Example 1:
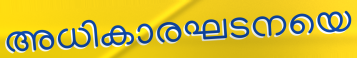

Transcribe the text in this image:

അധികാരഘടനയെ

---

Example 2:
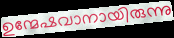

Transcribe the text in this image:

ഉന്മേഷവാനായിരുന്നു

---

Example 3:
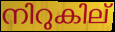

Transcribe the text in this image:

നിറുകില്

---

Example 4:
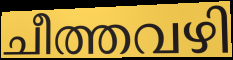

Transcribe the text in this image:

ചീത്തവഴി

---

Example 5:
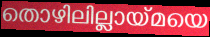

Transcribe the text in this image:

തൊഴിലില്ലായ്മയെ